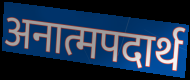
अनात्मपदार्थ